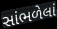
સાંભળેલાં